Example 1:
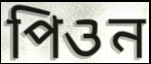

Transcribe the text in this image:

পিওন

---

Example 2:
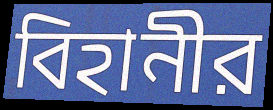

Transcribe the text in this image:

বিহানীর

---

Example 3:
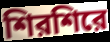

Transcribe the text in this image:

শিরশিরে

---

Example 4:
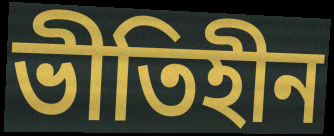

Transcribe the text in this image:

ভীতিহীন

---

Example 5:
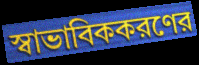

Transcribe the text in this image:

স্বাভাবিককরণের